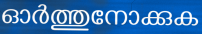
ഓർത്തുനോക്കുക